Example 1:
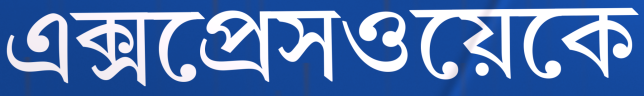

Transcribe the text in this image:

এক্সপ্রেসওয়েকে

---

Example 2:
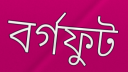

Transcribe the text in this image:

বর্গফুট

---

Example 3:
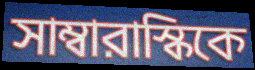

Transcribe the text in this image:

সাম্বারাস্কিকে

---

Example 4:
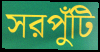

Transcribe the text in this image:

সরপুঁটি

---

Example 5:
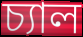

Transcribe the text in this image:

চ্যাল